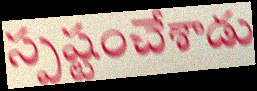
స్పష్టంచేశాడు